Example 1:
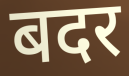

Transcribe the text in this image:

बदर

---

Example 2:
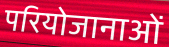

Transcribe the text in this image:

परियोजानाओं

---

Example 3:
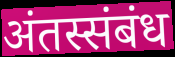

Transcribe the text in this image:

अंतस्संबंध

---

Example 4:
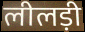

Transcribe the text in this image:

लीलड़ी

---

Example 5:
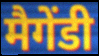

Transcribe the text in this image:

मैगेंडी